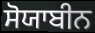
ਸੋਯਾਬੀਨ